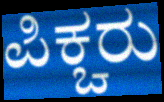
ಪಿಕ್ಚರು